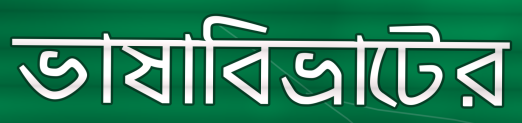
ভাষাবিভ্রাটের